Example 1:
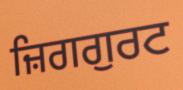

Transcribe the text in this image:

ਜ਼ਿਗਗੁਰਟ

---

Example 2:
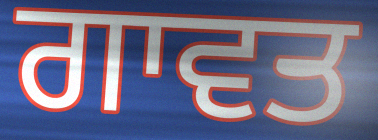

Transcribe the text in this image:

ਗਾਵਤ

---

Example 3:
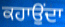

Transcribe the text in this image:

ਕਹਾਉਂਦਾ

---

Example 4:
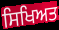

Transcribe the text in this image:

ਸਿਖਿਅਤ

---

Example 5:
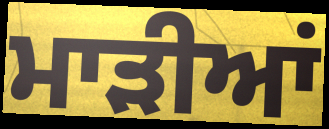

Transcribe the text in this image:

ਮਾੜੀਆਂ